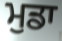
ਮੁਡਾ